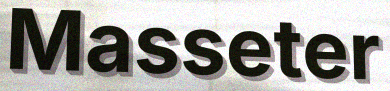
Masseter